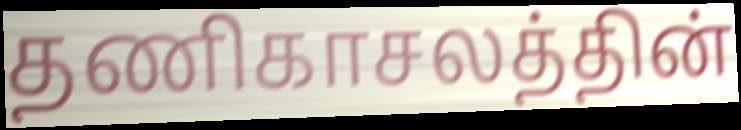
தணிகாசலத்தின்